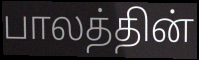
பாலத்தின்